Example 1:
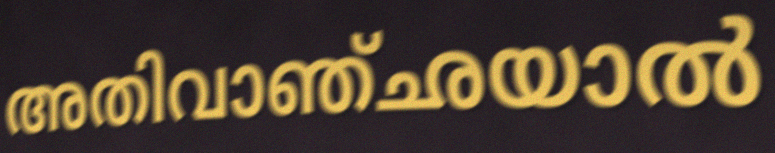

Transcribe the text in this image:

അതിവാഞ്ഛയാൽ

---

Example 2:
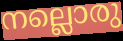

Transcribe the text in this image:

നല്ലൊരു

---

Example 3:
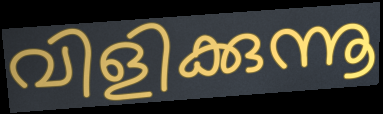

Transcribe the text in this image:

വിളിക്കുന്നൂ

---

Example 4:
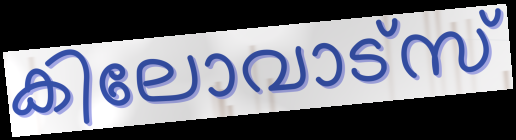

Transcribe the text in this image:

കിലോവാട്സ്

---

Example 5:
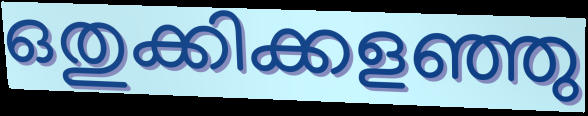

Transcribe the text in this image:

ഒതുക്കിക്കളഞ്ഞു